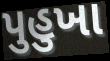
પુહુખા